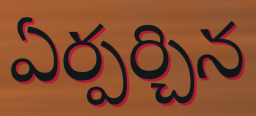
ఏర్పర్చిన